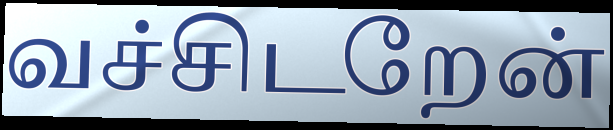
வச்சிடறேன்